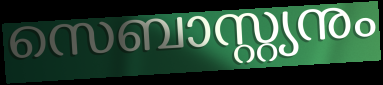
സെബാസ്റ്റ്യനും